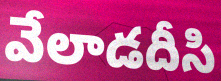
వేలాడదీసి